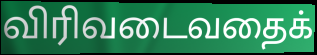
விரிவடைவதைக்